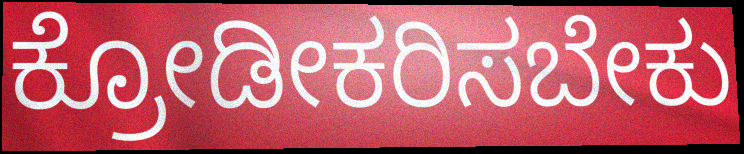
ಕ್ರೋಡೀಕರಿಸಬೇಕು